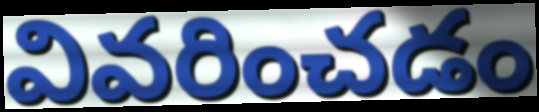
వివరించడం